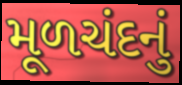
મૂળચંદનું